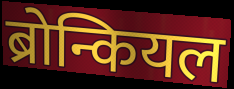
ब्रोन्कियल